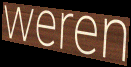
weren